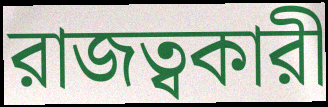
রাজত্বকারী